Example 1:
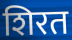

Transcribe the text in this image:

शिरत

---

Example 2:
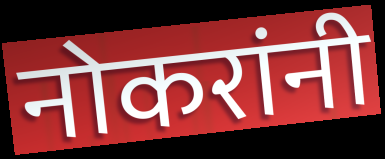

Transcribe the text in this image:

नोकरांनी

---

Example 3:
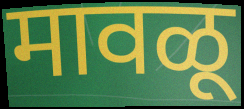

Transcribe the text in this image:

मावळू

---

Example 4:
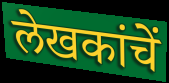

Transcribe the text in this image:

लेखकांचें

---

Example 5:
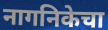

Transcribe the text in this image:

नागनिकेचा